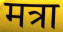
मत्रा